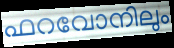
ഫറവോനിലും